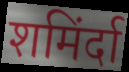
शमिंर्दा